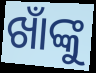
ଖାଁଙ୍କୁ